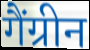
गैंग्रीन